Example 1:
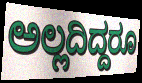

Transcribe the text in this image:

ಅಲ್ಲದಿದ್ದರೂ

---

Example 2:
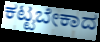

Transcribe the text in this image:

ಕಟ್ಟಬೇಕಾದ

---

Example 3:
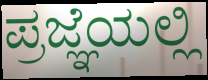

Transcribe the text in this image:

ಪ್ರಜ್ಞೆಯಲ್ಲಿ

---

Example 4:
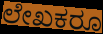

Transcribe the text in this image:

ಲೇಖಕರೂ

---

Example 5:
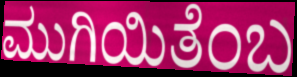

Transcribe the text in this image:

ಮುಗಿಯಿತೆಂಬ